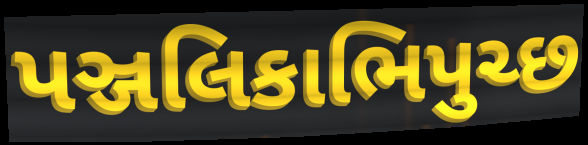
પઞ્જલિકાભિપુચ્છ